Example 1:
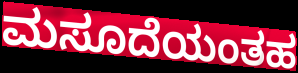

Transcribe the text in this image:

ಮಸೂದೆಯಂತಹ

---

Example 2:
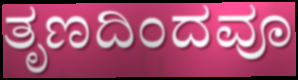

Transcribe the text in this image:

ತೃಣದಿಂದವೂ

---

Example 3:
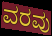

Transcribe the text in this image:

ವರವು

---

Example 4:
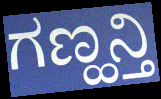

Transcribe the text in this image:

ಗಣ್ಹನ್ತಿ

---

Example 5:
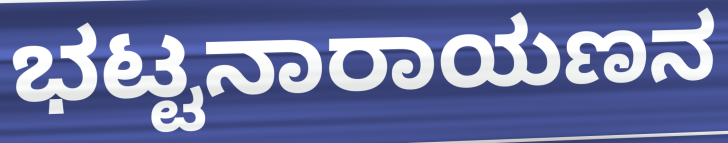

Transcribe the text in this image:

ಭಟ್ಟನಾರಾಯಣನ